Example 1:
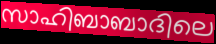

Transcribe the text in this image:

സാഹിബാബാദിലെ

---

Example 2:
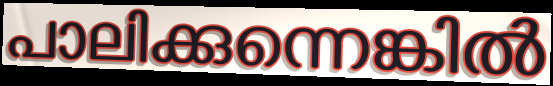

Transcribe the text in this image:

പാലിക്കുന്നെങ്കിൽ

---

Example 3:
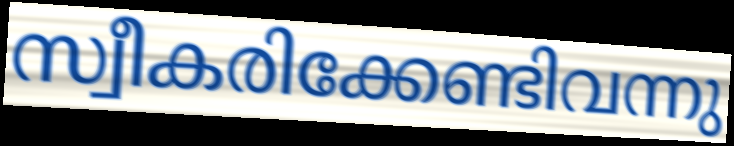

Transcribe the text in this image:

സ്വീകരിക്കേണ്ടിവന്നു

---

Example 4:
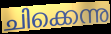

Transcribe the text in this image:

ചിക്കെന്നു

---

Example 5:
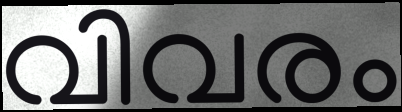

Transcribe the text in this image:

വിവരം